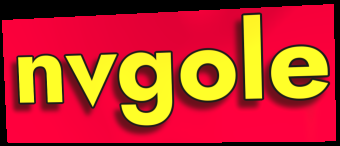
nvgole